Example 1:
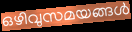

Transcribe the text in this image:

ഒഴിവുസമയങ്ങൾ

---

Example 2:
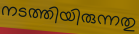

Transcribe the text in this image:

നടത്തിയിരുന്നതു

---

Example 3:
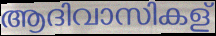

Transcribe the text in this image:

ആദിവാസികള്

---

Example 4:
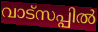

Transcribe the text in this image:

വാട്സപ്പിൽ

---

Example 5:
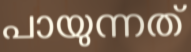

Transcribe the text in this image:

പായുന്നത്